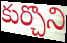
కుర్చొని